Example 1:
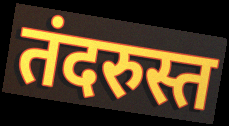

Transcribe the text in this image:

तंदरुस्त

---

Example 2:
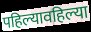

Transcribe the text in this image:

पहिल्यावहिल्या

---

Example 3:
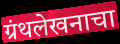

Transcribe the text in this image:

ग्रंथलेखनाचा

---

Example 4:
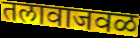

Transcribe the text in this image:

तलावाजवळ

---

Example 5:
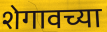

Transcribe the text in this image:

शेगावच्या